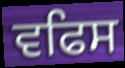
ਵਫਿਸ